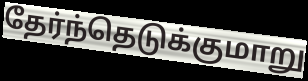
தேர்ந்தெடுக்குமாறு